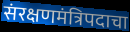
संरक्षणमंत्रिपदाचा